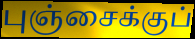
புஞ்சைக்குப்